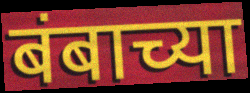
बंबाच्या